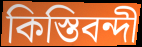
কিস্তিবন্দী